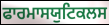
ਫਾਰਮਾਸਯੁਟਿਕਲਸ